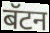
बॅटन